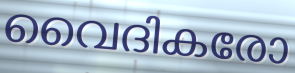
വൈദികരോ